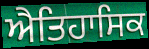
ਐਤਿਹਾਸਿਕ